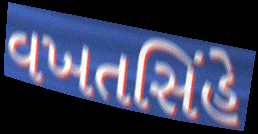
વખતસિંહે